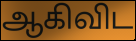
ஆகிவிட